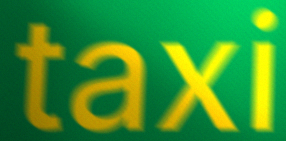
taxi